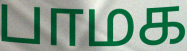
பாமக